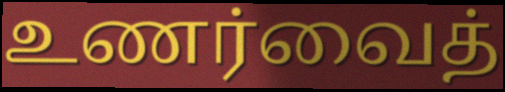
உணர்வைத்